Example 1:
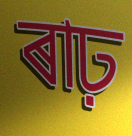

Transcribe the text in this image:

ৰাঢ়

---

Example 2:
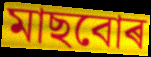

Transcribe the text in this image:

মাছবোৰ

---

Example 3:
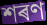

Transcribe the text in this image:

শৰণ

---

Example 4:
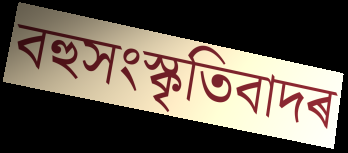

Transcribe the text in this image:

বহুসংস্কৃতিবাদৰ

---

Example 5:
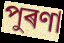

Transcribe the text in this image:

পুৰণা